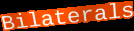
Bilaterals